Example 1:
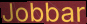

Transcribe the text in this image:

Jobbar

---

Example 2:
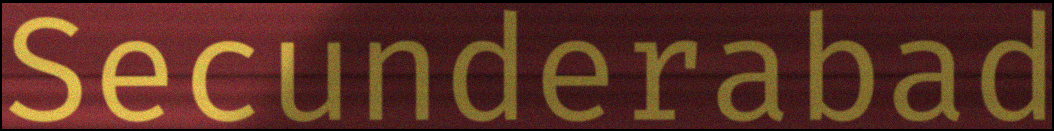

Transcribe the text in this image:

Secunderabad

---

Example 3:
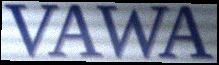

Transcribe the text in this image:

VAWA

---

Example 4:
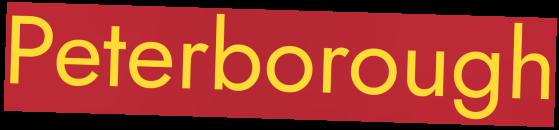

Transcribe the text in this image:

Peterborough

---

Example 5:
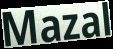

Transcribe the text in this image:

Mazal